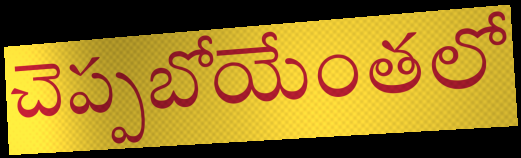
చెప్పబోయేంతలో